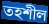
তহশীল